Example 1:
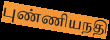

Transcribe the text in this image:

புண்ணியநதி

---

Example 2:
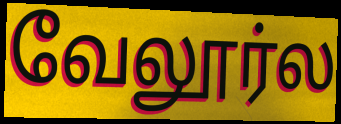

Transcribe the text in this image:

வேலூர்ல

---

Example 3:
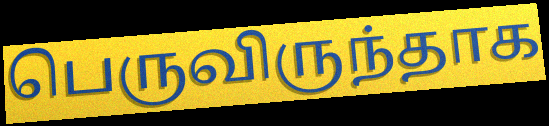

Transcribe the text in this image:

பெருவிருந்தாக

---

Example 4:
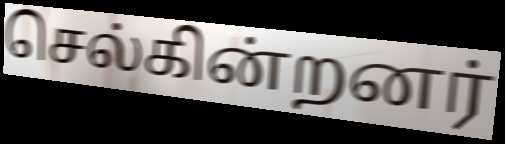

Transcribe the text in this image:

செல்கின்றனர்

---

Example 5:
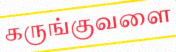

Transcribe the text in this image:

கருங்குவளை